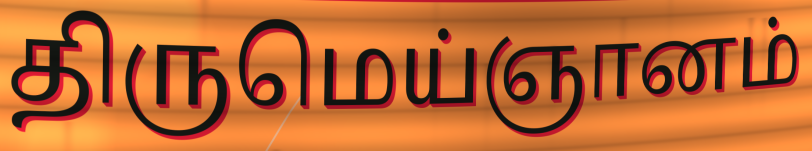
திருமெய்ஞானம்